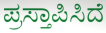
ಪ್ರಸ್ತಾಪಿಸಿದೆ